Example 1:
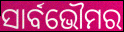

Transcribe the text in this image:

ସାର୍ବଭୌମର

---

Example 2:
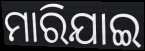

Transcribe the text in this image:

ମାରିଯାଇ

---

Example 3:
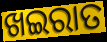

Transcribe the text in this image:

ଖଇରାତ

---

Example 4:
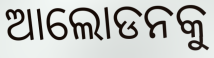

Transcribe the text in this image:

ଆଲୋଡନକୁ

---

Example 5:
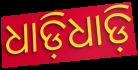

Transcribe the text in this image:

ଧାଡ଼ିଧାଡ଼ି